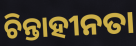
ଚିନ୍ତାହୀନତା